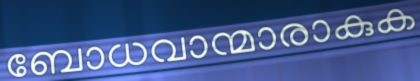
ബോധവാന്മാരാകുക